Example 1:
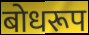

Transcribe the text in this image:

बोधरूप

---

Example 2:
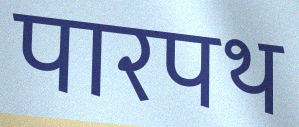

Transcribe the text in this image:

पारपथ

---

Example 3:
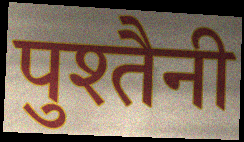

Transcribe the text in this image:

पुश्‍तैनी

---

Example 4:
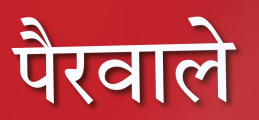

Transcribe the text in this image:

पैरवाले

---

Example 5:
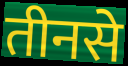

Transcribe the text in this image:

तीनसे